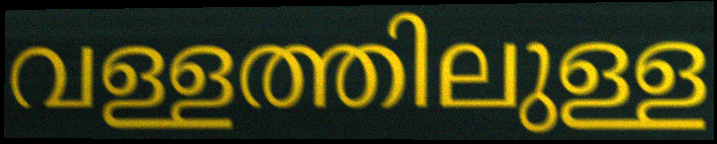
വള്ളത്തിലുള്ള